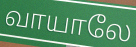
வாயாலே